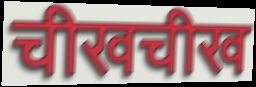
चीखचीख